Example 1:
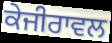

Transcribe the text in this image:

ਕੇਜੀਰਾਵਲ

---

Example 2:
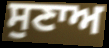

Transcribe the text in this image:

ਸੁਣਾਅ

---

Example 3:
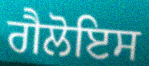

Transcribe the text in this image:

ਗੈਲੋਇਸ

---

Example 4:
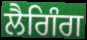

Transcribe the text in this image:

ਲੈਗਿੰਗ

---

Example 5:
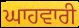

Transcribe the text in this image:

ਘਾਹਵਾਰੀ